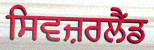
ਸਿਵਜ਼ਰਲੈਂਡ